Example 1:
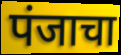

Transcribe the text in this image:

पंजाचा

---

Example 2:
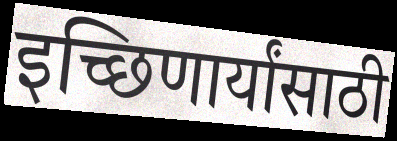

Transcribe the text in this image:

इच्छिणार्यांसाठी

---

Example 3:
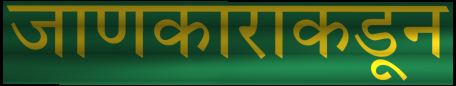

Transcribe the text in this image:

जाणकाराकडून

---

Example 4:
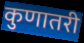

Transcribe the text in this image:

कुणातरी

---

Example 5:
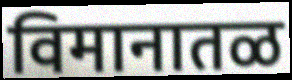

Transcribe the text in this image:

विमानातळ